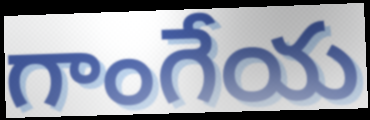
గాంగేయ